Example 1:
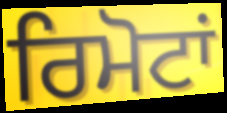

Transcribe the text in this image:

ਰਿਮੋਟਾਂ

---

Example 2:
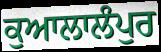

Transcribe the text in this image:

ਕੁਆਲਾਲੰਪੁਰ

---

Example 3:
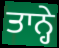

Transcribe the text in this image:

ਤਾਨ੍ਹੇ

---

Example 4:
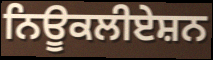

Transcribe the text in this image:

ਨਿਊਕਲੀਏਸ਼ਨ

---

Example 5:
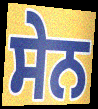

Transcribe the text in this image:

ਸੇਨ